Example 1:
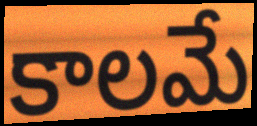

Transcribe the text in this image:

కాలమే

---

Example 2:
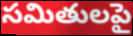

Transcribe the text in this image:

సమితులపై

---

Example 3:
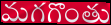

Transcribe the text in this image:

మగగొంతు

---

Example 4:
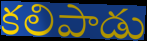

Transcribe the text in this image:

కలిపాడు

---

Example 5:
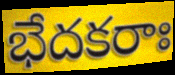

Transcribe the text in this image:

భేదకరాః